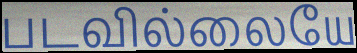
படவில்லையே